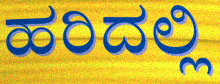
ಹರಿದಲ್ಲಿ